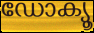
ഡോക്യൂ